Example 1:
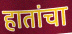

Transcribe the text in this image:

हातांचा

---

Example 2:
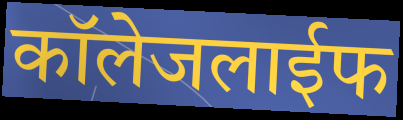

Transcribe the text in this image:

कॉलेजलाईफ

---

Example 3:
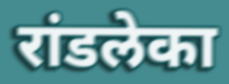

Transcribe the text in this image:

रांडलेका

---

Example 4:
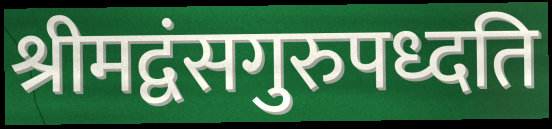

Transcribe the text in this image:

श्रीमद्वंसगुरुपध्दति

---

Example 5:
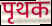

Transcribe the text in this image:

पृथक